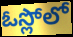
ఓస్లోలో